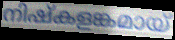
നിഷ്കളങ്കമായ്